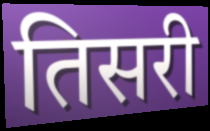
तिसरी